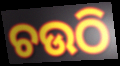
ଚଉଠି